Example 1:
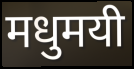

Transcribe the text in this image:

मधुमयी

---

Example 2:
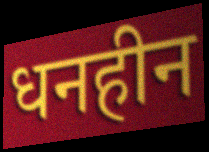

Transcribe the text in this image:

धनहीन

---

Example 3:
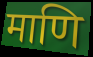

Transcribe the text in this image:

माणि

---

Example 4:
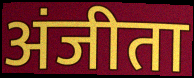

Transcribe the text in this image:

अंजीता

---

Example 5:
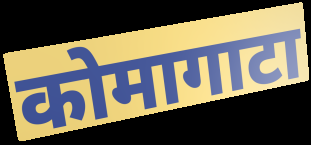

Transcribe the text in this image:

कोमागाटा